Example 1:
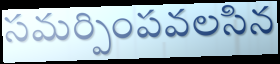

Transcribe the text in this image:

సమర్పింపవలసిన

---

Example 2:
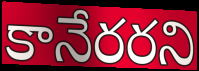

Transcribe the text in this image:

కానేరరని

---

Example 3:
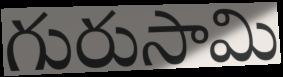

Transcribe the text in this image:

గురుసామి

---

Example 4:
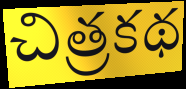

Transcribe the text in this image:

చిత్రకథ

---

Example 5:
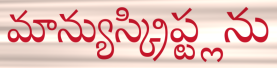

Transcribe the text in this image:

మాన్యుస్క్రిప్ట్లను